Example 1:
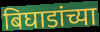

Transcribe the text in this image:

बिघाडांच्या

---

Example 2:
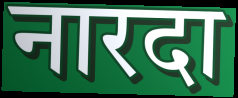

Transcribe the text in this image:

नारदा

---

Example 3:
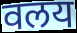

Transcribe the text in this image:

वलय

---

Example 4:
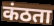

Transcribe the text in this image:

कंठता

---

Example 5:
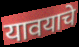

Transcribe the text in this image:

यावयाचे